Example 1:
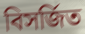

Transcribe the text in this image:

বিসর্জিত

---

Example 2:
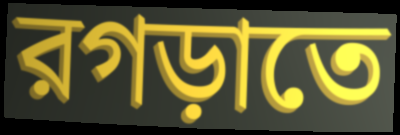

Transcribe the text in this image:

রগড়াতে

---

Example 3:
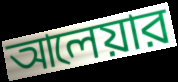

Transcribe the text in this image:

আলেয়ার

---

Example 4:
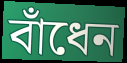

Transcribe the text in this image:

বাঁধেন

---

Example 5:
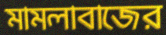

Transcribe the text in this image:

মামলাবাজের